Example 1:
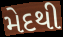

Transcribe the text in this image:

મેદથી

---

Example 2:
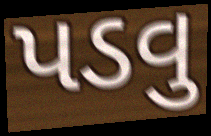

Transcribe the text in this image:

પડવુ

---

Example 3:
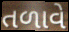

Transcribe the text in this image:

તળાવે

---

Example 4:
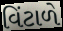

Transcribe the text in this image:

વિંટાળે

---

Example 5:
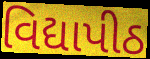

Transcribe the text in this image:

વિદ્યાપીઠ